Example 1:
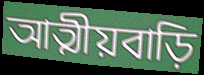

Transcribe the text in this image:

আত্মীয়বাড়ি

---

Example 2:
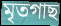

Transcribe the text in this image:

মৃতগাছ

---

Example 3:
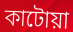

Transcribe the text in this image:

কাটোয়া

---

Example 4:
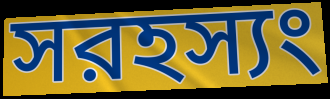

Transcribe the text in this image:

সরহস্যং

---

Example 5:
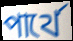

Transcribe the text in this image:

পার্থে